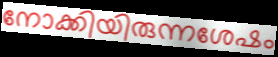
നോക്കിയിരുന്നശേഷം